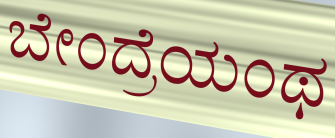
ಬೇಂದ್ರೆಯಂಥ